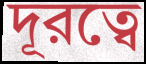
দূরত্বে